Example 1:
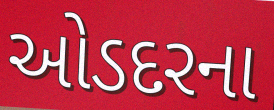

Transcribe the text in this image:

ઓડદરના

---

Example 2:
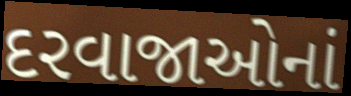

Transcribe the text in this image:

દરવાજાઓનાં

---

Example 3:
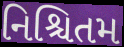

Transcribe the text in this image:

નિશ્ચિતમ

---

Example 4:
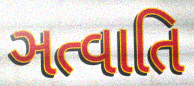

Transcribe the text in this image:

ઞત્વાતિ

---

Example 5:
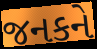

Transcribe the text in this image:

જનકને